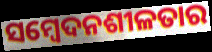
ସମ୍ୱେଦନଶୀଳତାର